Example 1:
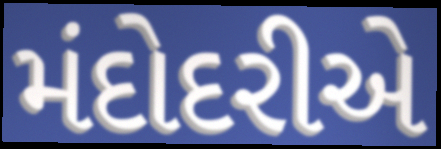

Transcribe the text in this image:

મંદોદરીએ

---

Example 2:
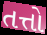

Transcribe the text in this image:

તત્તો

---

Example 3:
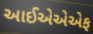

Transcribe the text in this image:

આઈએએએફ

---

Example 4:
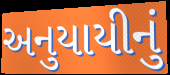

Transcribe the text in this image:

અનુયાયીનું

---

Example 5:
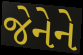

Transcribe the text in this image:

જેનેને